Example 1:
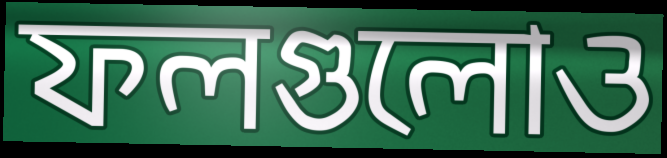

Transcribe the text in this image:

ফলগুলোও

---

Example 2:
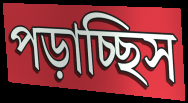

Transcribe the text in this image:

পড়াচ্ছিস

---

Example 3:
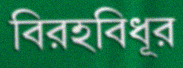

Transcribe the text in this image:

বিরহবিধূর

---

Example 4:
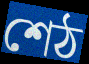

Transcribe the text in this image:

শেঠ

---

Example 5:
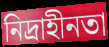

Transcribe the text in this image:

নিদ্রাহীনতা